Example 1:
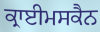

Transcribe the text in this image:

ਕ੍ਰਾਈਮਸਕੈਨ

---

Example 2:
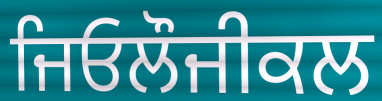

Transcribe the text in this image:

ਜਿਓਲੌਜੀਕਲ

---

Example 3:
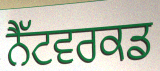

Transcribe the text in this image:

ਨੈੱਟਵਰਕਡ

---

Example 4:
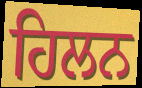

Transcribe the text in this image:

ਹਿਲਨ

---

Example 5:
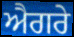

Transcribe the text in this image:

ਐਗਰੇ